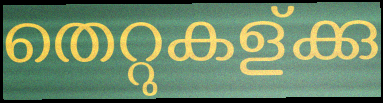
തെറ്റുകള്ക്കു